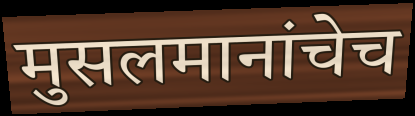
मुसलमानांचेच